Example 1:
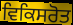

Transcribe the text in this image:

ਵਿਕਿਸਰੋਤ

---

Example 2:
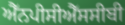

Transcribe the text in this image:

ਐੱਨਪੀਸੀਐੱਸਸੀਬੀ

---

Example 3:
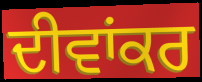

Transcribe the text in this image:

ਦੀਵਾਂਕਰ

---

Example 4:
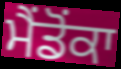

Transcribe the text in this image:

ਮੈਂਡੋਂਕਾ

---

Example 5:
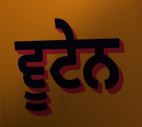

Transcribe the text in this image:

ਵੂਟੇਨ